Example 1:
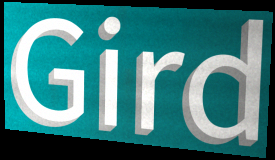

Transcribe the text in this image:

Gird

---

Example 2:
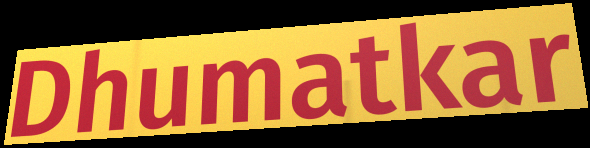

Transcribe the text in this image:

Dhumatkar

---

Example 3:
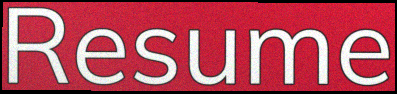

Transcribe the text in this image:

Resume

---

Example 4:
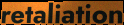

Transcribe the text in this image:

retaliation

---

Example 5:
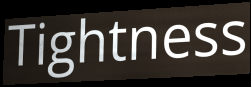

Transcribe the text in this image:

Tightness